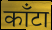
काँटा